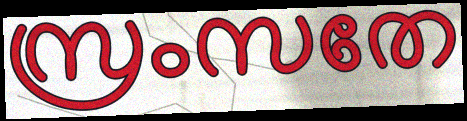
സ്രംസതേ